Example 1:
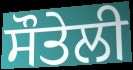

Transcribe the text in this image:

ਸੌਤੇਲੀ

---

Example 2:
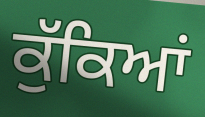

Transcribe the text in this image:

ਕੁੱਕਿਆਂ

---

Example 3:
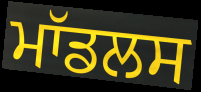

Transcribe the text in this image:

ਮਾੱਡਲਸ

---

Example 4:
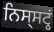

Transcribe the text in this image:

ਨਿਸ੍ਸਟ੍ਠਂ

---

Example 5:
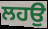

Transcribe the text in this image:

ਲਹਉ